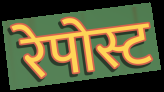
रेपोस्ट